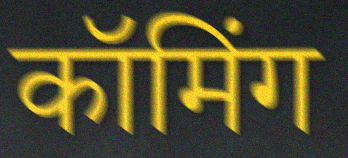
कॉमिंग